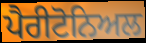
ਪੈਰੀਟੋਨਿਅਲ